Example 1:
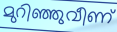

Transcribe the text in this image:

മുറിഞ്ഞുവീണ്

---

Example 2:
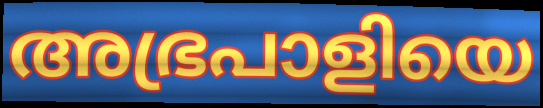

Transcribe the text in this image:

അഭ്രപാളിയെ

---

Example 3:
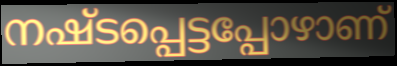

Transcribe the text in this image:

നഷ്ടപ്പെട്ടപ്പോഴാണ്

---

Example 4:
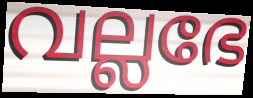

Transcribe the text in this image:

വല്ലഭേ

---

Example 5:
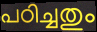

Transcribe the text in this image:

പഠിച്ചതും